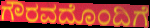
ಗೌರವದೊಂದಿಗೆ